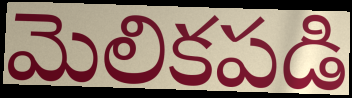
మెలికపడి